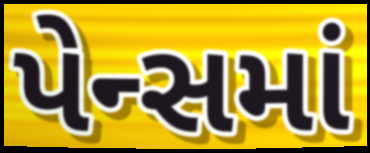
પેન્સમાં